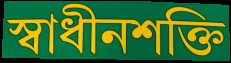
স্বাধীনশক্তি